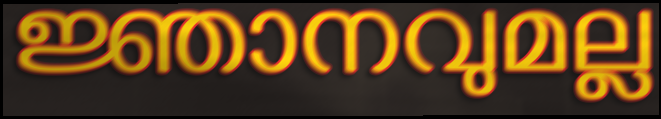
ജ്ഞാനവുമല്ല